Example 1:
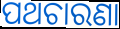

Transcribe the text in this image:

ପଥଚାରଣା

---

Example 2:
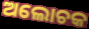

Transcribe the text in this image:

ଅଲୋଚକ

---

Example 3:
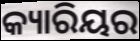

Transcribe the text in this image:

କ୍ୟାରିୟର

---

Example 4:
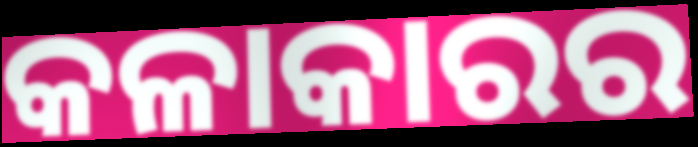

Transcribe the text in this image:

କଳାକାରର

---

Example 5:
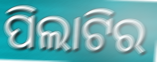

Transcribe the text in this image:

ପିଲାଟିର